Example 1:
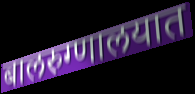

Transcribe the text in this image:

बालरुग्णालयात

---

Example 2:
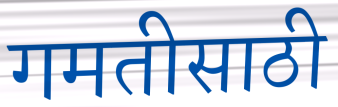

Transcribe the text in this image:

गमतीसाठी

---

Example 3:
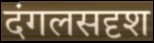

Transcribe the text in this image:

दंगलसदृश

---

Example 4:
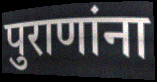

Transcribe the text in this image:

पुराणांना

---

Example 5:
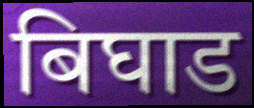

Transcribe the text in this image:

बिघाड